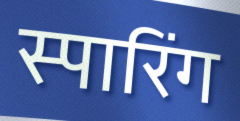
स्पारिंग